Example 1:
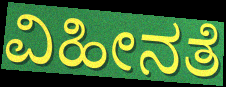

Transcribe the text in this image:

ವಿಹೀನತೆ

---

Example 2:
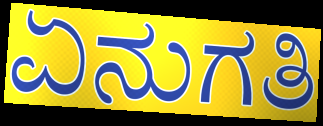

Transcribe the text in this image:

ಏನುಗತಿ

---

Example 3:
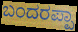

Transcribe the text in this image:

ಬಂದರಪ್ಪಾ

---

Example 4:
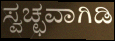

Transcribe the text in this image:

ಸ್ವಚ್ಛವಾಗಿಡಿ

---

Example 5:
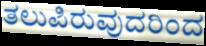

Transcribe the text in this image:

ತಲುಪಿರುವುದರಿಂದ